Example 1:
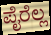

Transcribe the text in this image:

ಪೈರೆಲ್ಲ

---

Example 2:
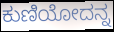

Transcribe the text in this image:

ಕುಣಿಯೋದನ್ನ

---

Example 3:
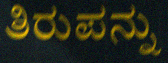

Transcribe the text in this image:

ತಿರುಪನ್ನು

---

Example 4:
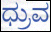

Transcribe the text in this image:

ಧ್ರುವ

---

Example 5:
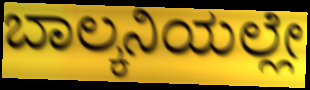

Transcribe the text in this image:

ಬಾಲ್ಕನಿಯಲ್ಲೇ